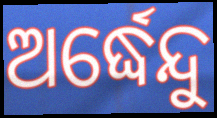
ଅର୍ଦ୍ଧେନ୍ଦୁ